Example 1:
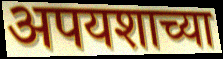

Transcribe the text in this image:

अपयशाच्या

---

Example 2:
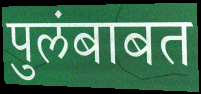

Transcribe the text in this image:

पुलंबाबत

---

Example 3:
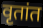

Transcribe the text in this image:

वृतांत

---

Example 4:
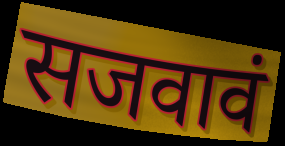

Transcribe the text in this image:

सजवावं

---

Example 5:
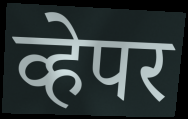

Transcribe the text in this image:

व्हेपर